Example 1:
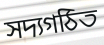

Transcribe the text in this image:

সদ্যগঠিত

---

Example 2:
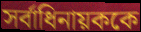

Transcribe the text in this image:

সর্বাধিনায়ককে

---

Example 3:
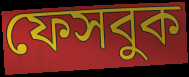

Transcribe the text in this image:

ফেসবুক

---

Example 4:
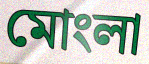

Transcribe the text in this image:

মোংলা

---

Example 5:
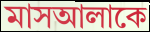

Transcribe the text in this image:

মাসআলাকে